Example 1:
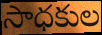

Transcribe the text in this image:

సాధకుల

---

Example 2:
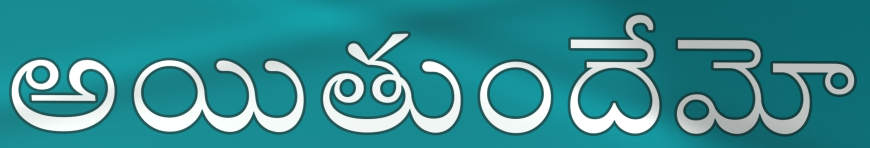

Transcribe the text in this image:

అయితుందేమో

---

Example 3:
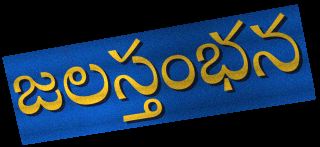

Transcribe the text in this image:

జలస్తంభన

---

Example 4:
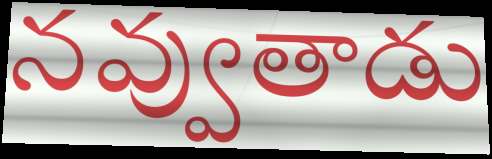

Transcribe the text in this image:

నవ్వుతాడు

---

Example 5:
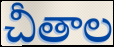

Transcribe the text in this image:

చీతాల